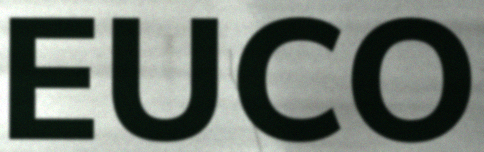
EUCO